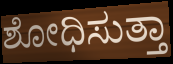
ಶೋಧಿಸುತ್ತಾ